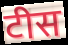
टीस